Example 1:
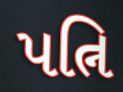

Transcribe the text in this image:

પત્નિ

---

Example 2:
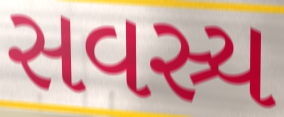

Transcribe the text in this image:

સવસ્ર્ય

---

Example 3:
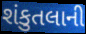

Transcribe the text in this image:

શંકુતલાની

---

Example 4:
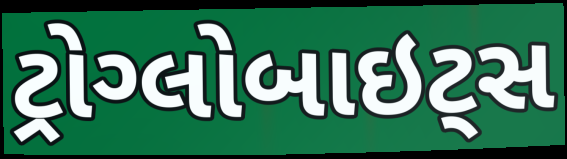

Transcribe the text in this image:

ટ્રોગ્લોબાઇટ્સ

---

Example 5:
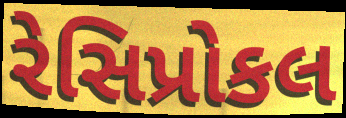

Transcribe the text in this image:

રેસિપ્રોકલ